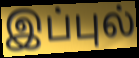
இப்புல்